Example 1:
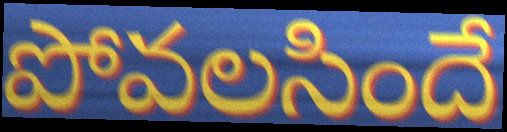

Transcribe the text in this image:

పోవలసిందే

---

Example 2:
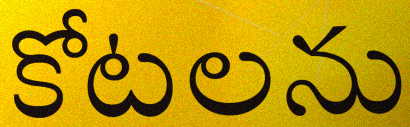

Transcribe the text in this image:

కోటలను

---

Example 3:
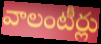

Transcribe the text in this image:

వాలంటీర్లు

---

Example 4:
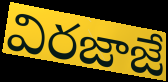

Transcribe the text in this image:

విరజాజే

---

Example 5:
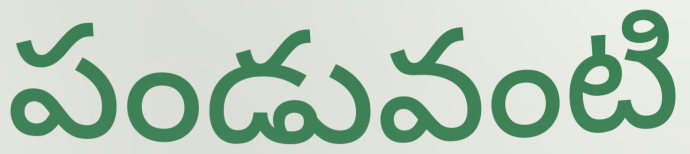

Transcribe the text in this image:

పండువంటి